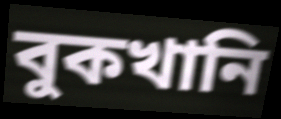
বুকখানি